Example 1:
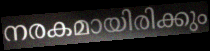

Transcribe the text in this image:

നരകമായിരിക്കും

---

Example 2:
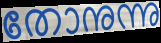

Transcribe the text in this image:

തോനുന്നു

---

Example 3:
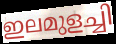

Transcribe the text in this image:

ഇലമുളച്ചി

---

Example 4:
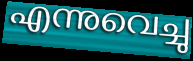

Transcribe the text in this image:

എന്നുവെച്ചു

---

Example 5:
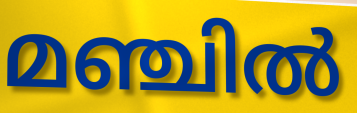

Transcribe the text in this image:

മഞ്ചിൽ